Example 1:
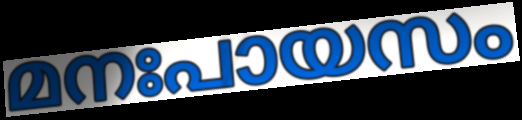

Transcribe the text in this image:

മനഃപായസം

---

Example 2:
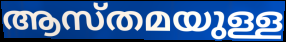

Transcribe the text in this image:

ആസ്തമയുള്ള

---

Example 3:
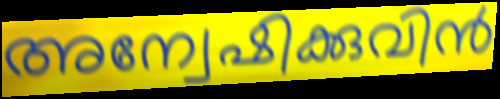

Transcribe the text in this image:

അന്വേഷിക്കുവിൻ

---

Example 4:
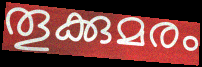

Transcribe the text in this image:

തൂക്കുമരം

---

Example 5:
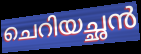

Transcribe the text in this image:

ചെറിയച്ഛൻ